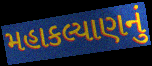
મહાકલ્યાણનું